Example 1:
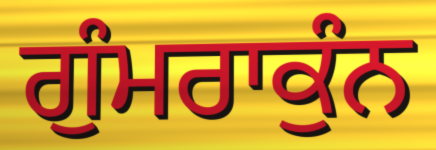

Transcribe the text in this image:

ਗੁੰਮਰਾਕੁੰਨ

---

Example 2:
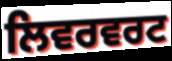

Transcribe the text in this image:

ਲਿਵਰਵਰਟ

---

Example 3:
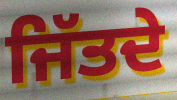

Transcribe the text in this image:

ਜਿੱਤਦੇ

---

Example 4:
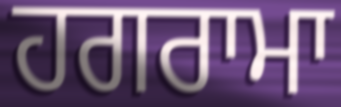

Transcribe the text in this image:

ਹਗਰਾਮਾ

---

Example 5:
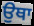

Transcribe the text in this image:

ਉਥਾ